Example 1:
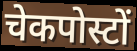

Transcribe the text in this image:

चेकपोस्टों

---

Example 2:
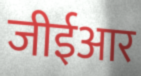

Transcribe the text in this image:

जीईआर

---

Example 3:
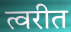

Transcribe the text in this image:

त्वरीत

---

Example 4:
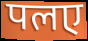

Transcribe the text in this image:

पलए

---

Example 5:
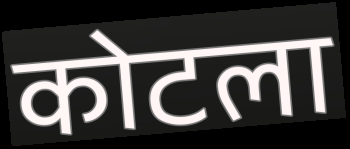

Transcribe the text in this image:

कोटला